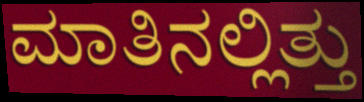
ಮಾತಿನಲ್ಲಿತ್ತು